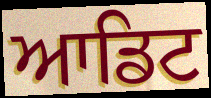
ਆਡਿਟ